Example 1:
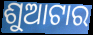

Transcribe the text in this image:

ଶୁଆଟାର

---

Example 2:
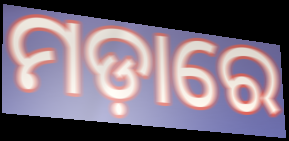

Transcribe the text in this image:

ମଡ଼ାରେ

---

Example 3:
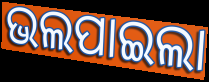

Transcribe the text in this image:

ଭଲପାଇଲା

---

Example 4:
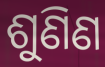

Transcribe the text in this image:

ଶୁଣିଣ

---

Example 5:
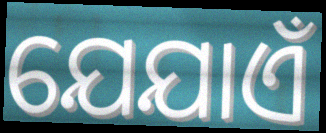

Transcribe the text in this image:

ଯେଯାଏଁ